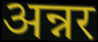
अन्नर